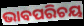
ଭାବପରିଚୟ